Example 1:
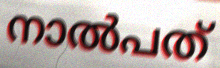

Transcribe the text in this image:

നാൽപത്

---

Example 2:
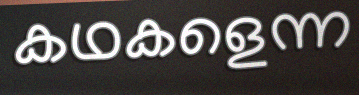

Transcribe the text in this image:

കഥകളെന്ന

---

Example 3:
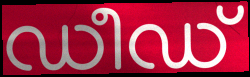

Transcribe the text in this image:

ഡീഡ്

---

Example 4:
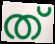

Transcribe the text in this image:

ത്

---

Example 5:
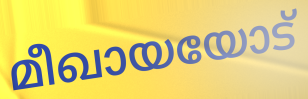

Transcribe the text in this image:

മീഖായയോട്